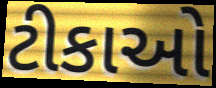
ટીકાઓ